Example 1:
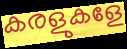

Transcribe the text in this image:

കരളുകളേ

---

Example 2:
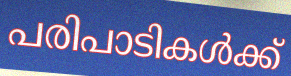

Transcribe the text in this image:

പരിപാടികൾക്ക്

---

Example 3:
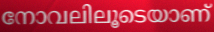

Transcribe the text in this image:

നോവലിലൂടെയാണ്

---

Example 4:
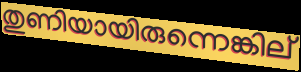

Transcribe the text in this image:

തുണിയായിരുന്നെങ്കില്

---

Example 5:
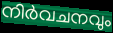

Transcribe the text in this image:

നിർവചനവും